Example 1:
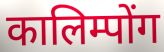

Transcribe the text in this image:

कालिम्पोंग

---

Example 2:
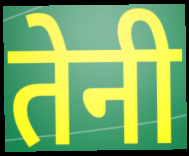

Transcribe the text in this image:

तेनी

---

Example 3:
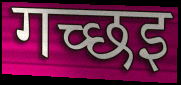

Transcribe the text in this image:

गच्छइ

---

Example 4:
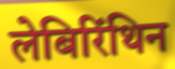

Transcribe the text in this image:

लेबिरिंथिन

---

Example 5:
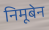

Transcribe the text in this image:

निमूबेन